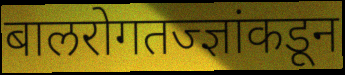
बालरोगतज्ज्ञांकडून